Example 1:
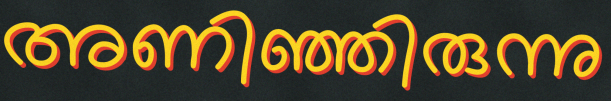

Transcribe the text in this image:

അണിഞ്ഞിരുന്നു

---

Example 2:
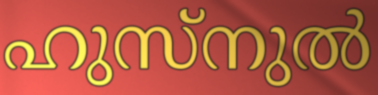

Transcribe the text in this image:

ഹുസ്നുൽ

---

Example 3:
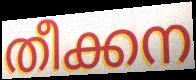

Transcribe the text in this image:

തീക്കന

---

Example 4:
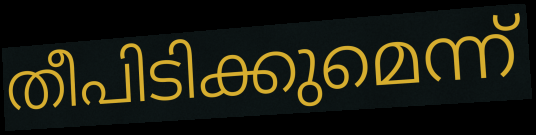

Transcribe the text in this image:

തീപിടിക്കുമെന്ന്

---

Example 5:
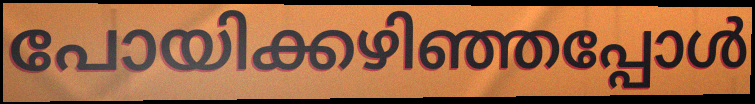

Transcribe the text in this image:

പോയിക്കഴിഞ്ഞപ്പോൾ